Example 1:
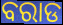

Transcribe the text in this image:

ବରାଡ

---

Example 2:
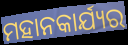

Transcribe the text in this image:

ମହାନକାର୍ଯ୍ୟର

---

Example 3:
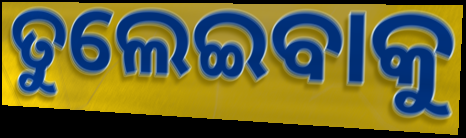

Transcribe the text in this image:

ତୁଲେଇବାକୁ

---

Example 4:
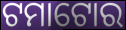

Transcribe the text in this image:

ଟମାଟୋର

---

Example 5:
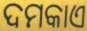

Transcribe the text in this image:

ଦମକାଏ